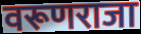
वरूणराजा